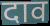
दाव